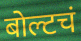
बोल्टचं